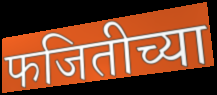
फजितीच्या